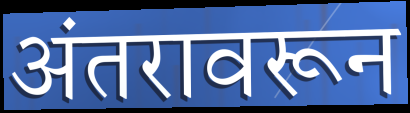
अंतरावरून